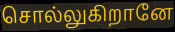
சொல்லுகிறானே